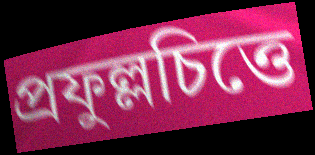
প্রফুল্লচিত্তে